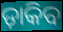
ଡ଼ାକିବ